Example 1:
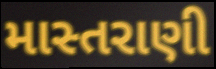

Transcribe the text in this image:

માસ્તરાણી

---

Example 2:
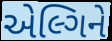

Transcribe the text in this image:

એલ્ગિને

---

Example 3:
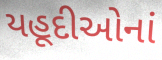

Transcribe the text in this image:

યહૂદીઓનાં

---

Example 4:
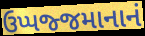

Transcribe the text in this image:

ઉપ્પજ્જમાનાનં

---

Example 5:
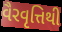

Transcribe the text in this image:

વૈરવૃત્તિથી